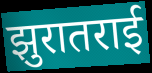
झुरातराई